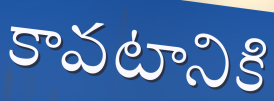
కావటానికి